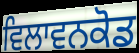
ਵਿਲਾਵਨਕੋਡ